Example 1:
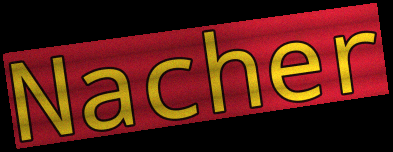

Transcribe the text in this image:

Nacher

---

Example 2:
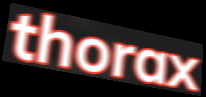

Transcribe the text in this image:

thorax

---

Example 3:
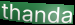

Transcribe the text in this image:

thanda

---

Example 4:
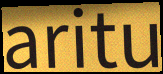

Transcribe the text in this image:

aritu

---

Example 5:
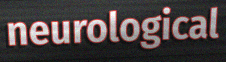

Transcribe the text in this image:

neurological